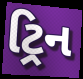
ટ્રિન